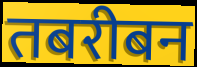
तबरीबन